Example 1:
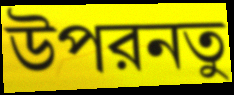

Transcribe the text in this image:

উপরনতু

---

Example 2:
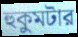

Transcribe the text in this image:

হুকুমটার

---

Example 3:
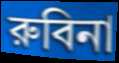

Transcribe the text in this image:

রুবিনা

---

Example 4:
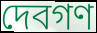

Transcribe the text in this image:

দেবগণ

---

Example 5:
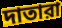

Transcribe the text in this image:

দাতারা